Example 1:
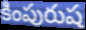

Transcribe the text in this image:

కింపురుష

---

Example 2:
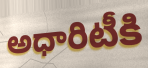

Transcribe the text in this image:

అధారిటీకి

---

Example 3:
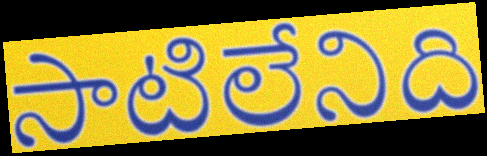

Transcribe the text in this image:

సాటిలేనిది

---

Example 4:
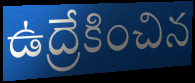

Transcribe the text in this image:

ఉద్రేకించిన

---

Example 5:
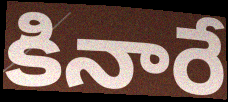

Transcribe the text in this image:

కినారే